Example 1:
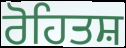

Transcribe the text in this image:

ਰੋਹਿਤਸ਼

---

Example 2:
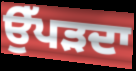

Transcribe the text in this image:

ਉੱਪੜਦਾ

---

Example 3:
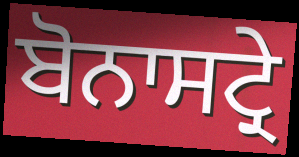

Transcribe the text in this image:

ਬੋਨਾਸਟ੍ਰੇ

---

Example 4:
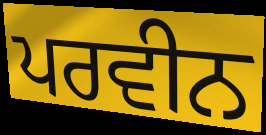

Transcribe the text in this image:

ਪਰਵੀਨ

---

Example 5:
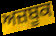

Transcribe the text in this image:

ਅਜ਼ਬੂਕ